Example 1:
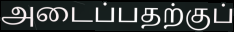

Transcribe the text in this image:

அடைப்பதற்குப்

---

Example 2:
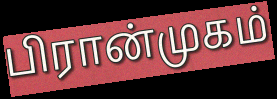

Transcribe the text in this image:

பிரான்முகம்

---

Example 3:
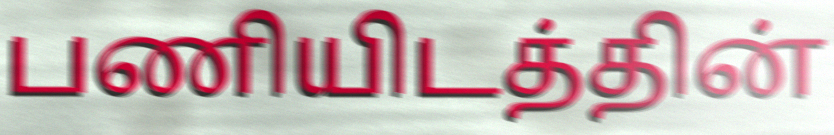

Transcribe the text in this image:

பணியிடத்தின்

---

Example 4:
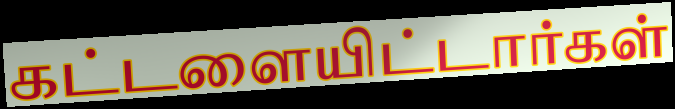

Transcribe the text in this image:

கட்டளையிட்டார்கள்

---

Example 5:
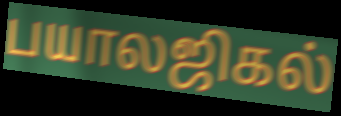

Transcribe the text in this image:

பயாலஜிகல்